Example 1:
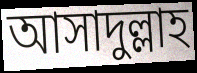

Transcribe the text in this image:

আসাদুল্লাহ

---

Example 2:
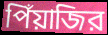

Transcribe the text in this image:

পিঁয়াজির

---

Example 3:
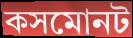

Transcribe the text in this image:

কসমোনট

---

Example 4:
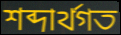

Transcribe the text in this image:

শব্দার্থগত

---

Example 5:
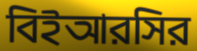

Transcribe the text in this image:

বিইআরসির